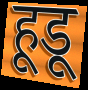
हूडू